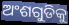
ଅଂଶଗୁଡିକୁ